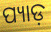
ପ୍ୟାଡ଼